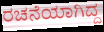
ರಚನೆಯಾಗಿದ್ದ